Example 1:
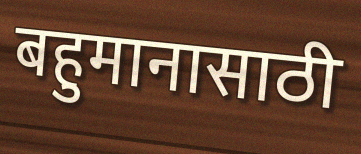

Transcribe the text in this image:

बहुमानासाठी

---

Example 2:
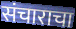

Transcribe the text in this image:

संचाराचा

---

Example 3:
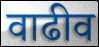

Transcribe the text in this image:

वाढीव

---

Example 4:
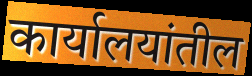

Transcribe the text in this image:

कार्यालयांतील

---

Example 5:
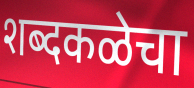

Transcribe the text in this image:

शब्दकळेचा